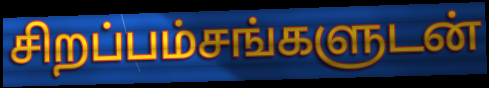
சிறப்பம்சங்களுடன்